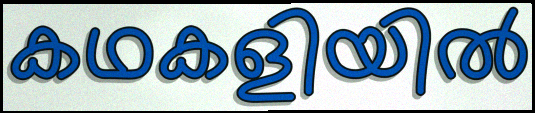
കഥകളിയിൽ